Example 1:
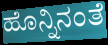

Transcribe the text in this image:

ಹೊನ್ನಿನಂತೆ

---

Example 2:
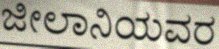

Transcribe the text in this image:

ಜೀಲಾನಿಯವರ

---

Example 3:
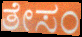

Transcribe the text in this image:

ತೇಸಂ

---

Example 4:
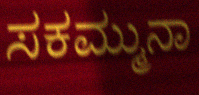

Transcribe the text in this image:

ಸಕಮ್ಮುನಾ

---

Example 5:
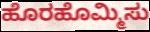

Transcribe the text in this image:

ಹೊರಹೊಮ್ಮಿಸು